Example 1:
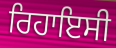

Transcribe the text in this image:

ਰਿਹਾਇਸੀ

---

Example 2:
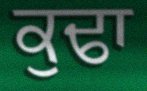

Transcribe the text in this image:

ਕੁਢਾ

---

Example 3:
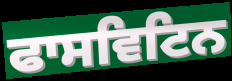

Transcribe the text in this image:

ਫਾਸਵਿਟਿਨ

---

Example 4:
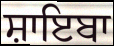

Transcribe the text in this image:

ਸ਼ਾਇਬਾ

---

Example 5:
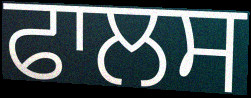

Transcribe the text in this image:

ਫਾਲਸ